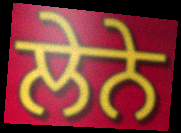
ਲੇਨੇ